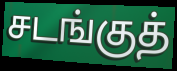
சடங்குத்